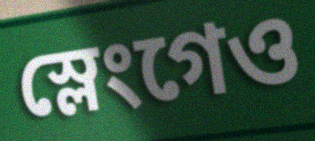
স্লেংগেও